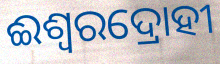
ଈଶ୍ଵରଦ୍ରୋହୀ